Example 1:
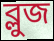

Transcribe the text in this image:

ব্লুজ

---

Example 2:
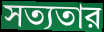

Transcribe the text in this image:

সত্যতার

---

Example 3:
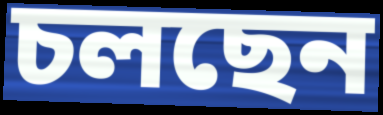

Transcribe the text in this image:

চলছেন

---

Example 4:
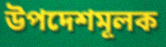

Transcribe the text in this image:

উপদেশমূলক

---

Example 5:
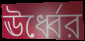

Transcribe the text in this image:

ঊর্ধ্বের